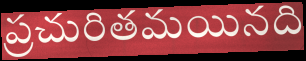
ప్రచురితమయినది